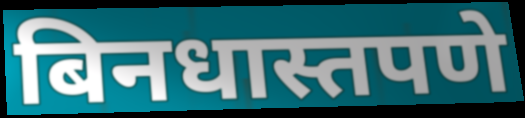
बिनधास्तपणे